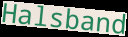
Halsband